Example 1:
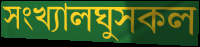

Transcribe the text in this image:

সংখ্যালঘুসকল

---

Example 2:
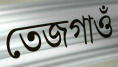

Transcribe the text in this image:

তেজগাওঁ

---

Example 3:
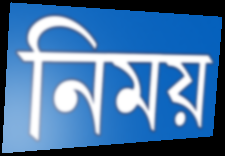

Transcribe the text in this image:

নিময়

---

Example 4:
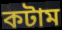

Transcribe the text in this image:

কটাম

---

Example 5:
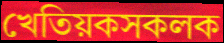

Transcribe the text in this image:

খেতিয়কসকলক